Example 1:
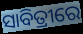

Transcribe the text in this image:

ସାବିତ୍ରୀରେ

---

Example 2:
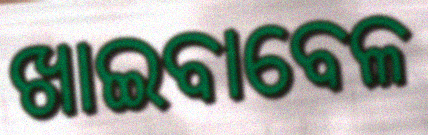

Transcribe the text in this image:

ଖାଇବାବେଳ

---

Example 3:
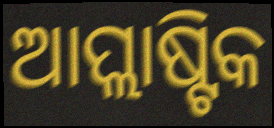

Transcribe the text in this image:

ଆପ୍ଲାଷ୍ଟିକ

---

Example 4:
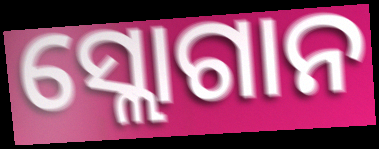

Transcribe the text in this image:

ସ୍ଲୋଗାନ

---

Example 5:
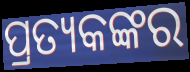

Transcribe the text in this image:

ପ୍ରତ୍ୟକଙ୍କର